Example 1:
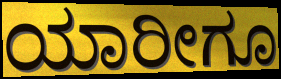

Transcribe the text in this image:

ಯಾರೀಗೂ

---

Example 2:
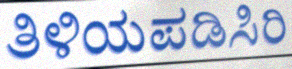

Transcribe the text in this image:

ತಿಳಿಯಪಡಿಸಿರಿ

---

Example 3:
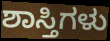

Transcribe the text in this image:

ಶಾಸ್ತಿಗಳು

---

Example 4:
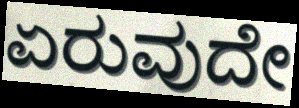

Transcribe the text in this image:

ಏರುವುದೇ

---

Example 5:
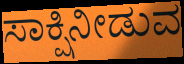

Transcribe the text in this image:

ಸಾಕ್ಷಿನೀಡುವ